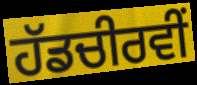
ਹੱਡਚੀਰਵੀਂ